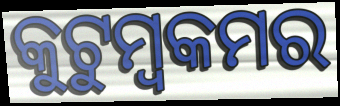
କୁଟୁମ୍ବକମର